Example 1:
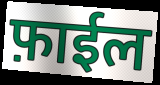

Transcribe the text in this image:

फ़ाईल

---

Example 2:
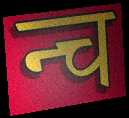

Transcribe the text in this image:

न्च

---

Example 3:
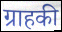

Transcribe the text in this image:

ग्राहकी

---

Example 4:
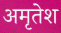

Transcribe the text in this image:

अमृतेश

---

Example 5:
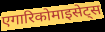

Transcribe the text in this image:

एगारिकोमाइसेट्स